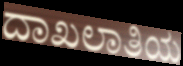
ದಾಖಲಾತಿಯ